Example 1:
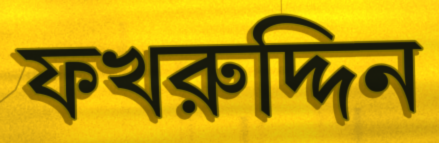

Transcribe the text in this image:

ফখরুদ্দিন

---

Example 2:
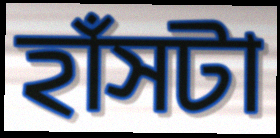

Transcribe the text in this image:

হাঁসটা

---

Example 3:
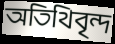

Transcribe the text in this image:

অতিথিবৃন্দ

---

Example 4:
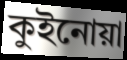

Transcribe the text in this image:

কুইনোয়া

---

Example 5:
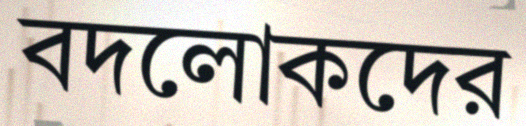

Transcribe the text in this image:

বদলোকদের